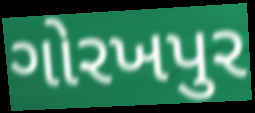
ગોરખપુર